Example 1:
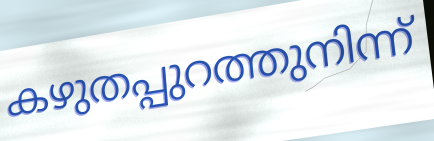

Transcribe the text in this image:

കഴുതപ്പുറത്തുനിന്ന്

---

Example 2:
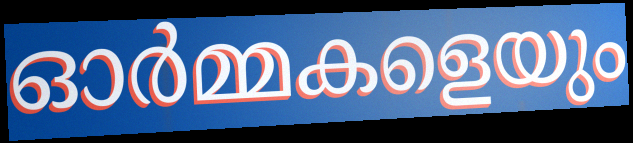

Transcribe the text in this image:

ഓർമ്മകളെയും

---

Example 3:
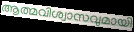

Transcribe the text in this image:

ആത്മവിശ്വാസവുമായി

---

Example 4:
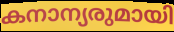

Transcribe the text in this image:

കനാന്യരുമായി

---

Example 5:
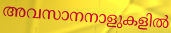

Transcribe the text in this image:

അവസാനനാളുകളിൽ